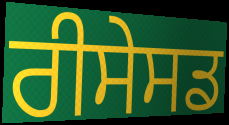
ਰੀਸੇਸਡ